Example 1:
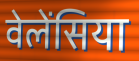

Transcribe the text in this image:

वेलेंसिया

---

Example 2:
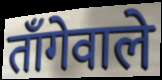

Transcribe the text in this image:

ताँगेवाले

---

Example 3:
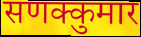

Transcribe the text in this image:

सणक्कुमार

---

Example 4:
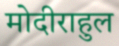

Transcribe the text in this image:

मोदीराहुल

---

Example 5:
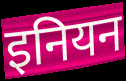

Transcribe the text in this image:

इनियन